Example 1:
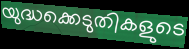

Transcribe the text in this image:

യുദ്ധക്കെടുതികളുടെ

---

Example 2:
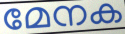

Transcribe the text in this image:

മേനക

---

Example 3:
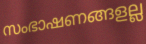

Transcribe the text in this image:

സംഭാഷണങ്ങളല്ല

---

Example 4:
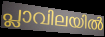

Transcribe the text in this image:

പ്ലാവിലയിൽ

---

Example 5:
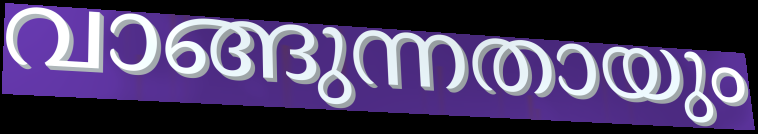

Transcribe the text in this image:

വാങ്ങുന്നതായും